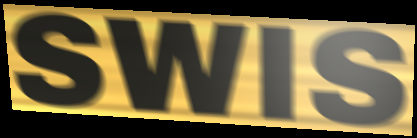
SWIS